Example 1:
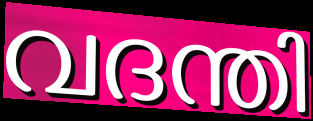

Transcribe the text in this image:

വദന്തി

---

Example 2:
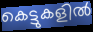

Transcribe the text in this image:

കെട്ടുകളിൽ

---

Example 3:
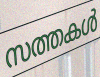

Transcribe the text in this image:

സത്തകൾ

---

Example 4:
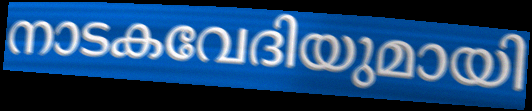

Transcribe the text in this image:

നാടകവേദിയുമായി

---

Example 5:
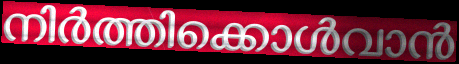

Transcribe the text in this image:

നിർത്തിക്കൊൾവാൻ